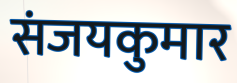
संजयकुमार